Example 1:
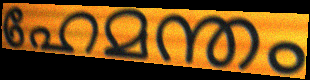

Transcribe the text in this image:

ഹേമന്തം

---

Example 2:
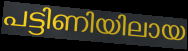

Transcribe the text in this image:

പട്ടിണിയിലായ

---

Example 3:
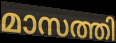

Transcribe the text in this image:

മാസത്തി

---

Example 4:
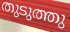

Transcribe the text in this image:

തുടുത്തു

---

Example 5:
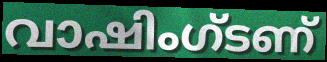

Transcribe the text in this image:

വാഷിംഗ്ടണ്